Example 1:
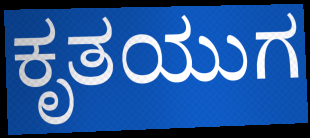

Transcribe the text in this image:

ಕೃತಯುಗ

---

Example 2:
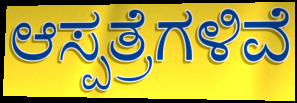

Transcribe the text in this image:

ಆಸ್ಪತ್ರೆಗಳಿವೆ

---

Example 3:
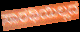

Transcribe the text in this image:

ಸಾರಥಿಯಿಲ್ಲದ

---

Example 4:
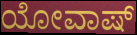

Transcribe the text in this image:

ಯೋವಾಷ್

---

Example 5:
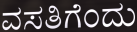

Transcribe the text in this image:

ವಸತಿಗೆಂದು